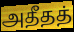
அதீதத்